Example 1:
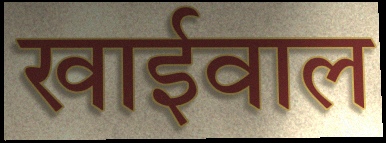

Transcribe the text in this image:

खाईवाल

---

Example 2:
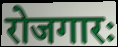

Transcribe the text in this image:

रोजगारः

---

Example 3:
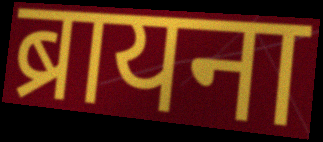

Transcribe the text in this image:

ब्रायना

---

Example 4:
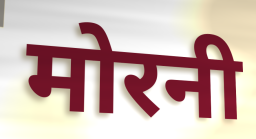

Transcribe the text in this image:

मोरनी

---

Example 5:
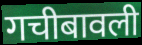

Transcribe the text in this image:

गचीबावली